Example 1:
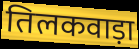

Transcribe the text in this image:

तिलकवाड़ा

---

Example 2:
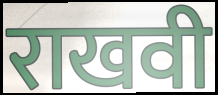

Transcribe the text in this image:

राखवी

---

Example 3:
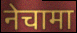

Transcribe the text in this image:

नेचामा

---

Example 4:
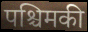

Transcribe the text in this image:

पश्चिमकी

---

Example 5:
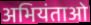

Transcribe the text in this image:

अभियंताओ